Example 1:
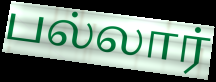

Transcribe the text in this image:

பல்லார்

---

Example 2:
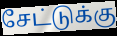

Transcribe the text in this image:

சேட்டுக்கு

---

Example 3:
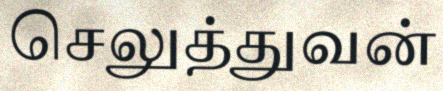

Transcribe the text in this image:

செலுத்துவன்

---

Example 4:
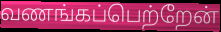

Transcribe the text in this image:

வணங்கப்பெற்றேன்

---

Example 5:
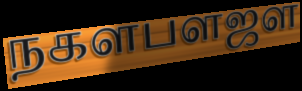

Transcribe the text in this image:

நகளபளஜள